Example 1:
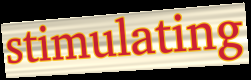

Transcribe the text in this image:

stimulating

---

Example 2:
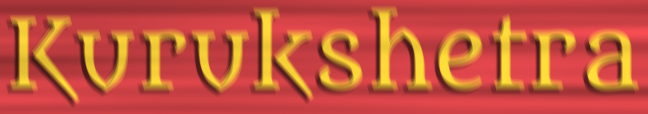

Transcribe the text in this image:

Kurukshetra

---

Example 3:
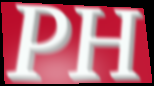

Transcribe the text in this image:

PH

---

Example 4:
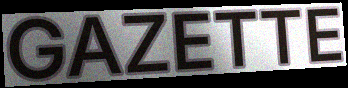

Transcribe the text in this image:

GAZETTE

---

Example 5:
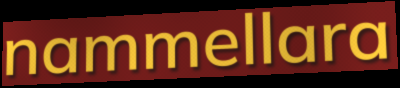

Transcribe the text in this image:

nammellara